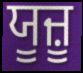
ਯੂਜ਼ੂ